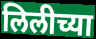
लिलीच्या